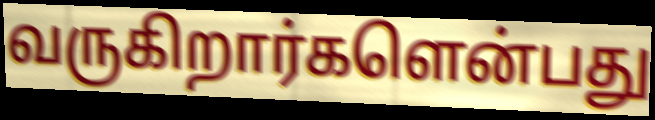
வருகிறார்களென்பது